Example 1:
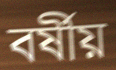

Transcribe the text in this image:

বর্ষীয়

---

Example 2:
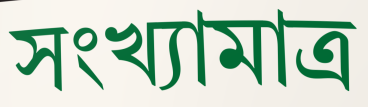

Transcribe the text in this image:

সংখ্যামাত্র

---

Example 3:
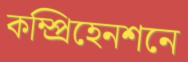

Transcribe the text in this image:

কম্প্রিহেনশনে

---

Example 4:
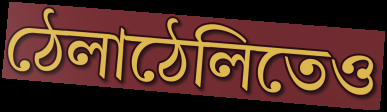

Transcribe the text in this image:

ঠেলাঠেলিতেও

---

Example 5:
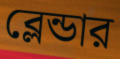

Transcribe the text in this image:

ব্লেন্ডার